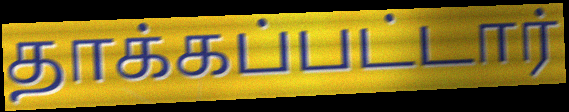
தாக்கப்பட்டார்